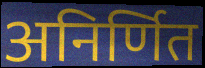
अनिर्णित